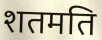
शतमति